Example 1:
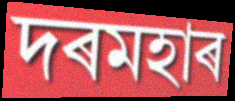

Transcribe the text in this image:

দৰমহাৰ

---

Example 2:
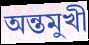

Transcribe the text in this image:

অন্তমুখী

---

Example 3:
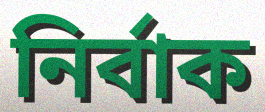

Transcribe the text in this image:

নিৰ্বাক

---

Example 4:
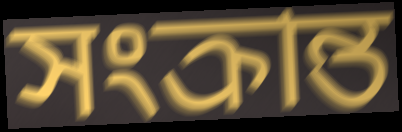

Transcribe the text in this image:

সংক্ৰান্ত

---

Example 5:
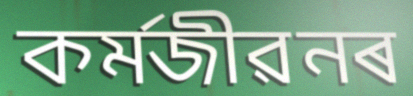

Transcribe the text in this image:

কৰ্মজীৱনৰ